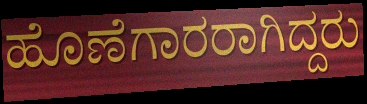
ಹೊಣೆಗಾರರಾಗಿದ್ದರು